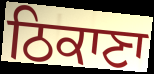
ਠਿਕਾਣਾ